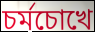
চর্মচোখে